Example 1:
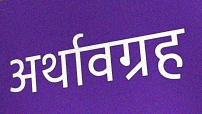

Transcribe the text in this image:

अर्थावग्रह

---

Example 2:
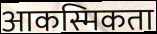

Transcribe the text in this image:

आकस्मिकता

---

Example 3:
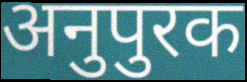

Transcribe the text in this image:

अनुपुरक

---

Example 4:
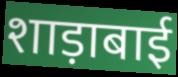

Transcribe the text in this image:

शाड़ाबाई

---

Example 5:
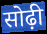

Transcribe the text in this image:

सोढ़ी